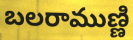
బలరాముణ్ణి